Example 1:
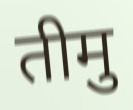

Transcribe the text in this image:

तीमु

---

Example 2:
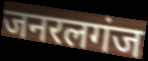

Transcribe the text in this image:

जनरलगंज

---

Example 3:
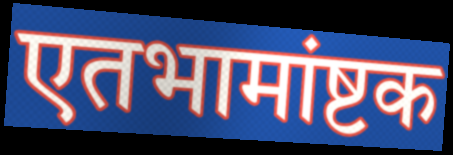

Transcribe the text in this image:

एतभामांष्टक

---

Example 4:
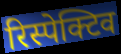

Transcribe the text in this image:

रिस्पेक्टिव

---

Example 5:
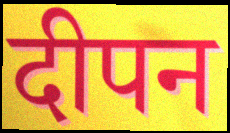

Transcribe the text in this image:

दीपन